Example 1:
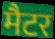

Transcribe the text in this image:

मैटर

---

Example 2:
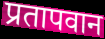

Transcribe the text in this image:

प्रतापवान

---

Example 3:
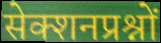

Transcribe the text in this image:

सेक्शनप्रश्नों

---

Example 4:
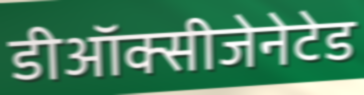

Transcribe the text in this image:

डीऑक्सीजेनेटेड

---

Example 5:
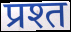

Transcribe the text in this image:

प्रश्त